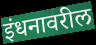
इंधनावरील